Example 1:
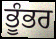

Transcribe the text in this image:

ਭੂੰਭਰ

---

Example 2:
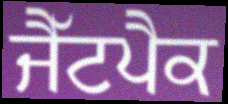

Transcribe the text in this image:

ਜੈੱਟਪੈਕ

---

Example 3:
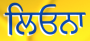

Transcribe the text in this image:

ਲਿਓਨਾ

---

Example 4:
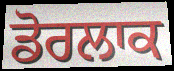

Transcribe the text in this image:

ਡੋਰਲਾਕ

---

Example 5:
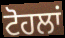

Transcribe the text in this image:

ਟੋਹਲਾਂ